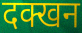
दक्खन